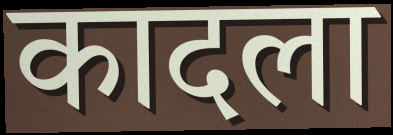
कादला